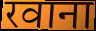
रवाना